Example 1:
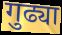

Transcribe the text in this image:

गुढ्या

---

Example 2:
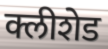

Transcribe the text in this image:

क्लीशेड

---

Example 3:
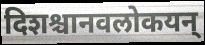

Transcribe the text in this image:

दिशश्चानवलोकयन्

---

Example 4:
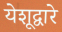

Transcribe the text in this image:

येशूद्वारे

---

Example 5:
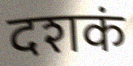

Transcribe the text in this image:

दशकं